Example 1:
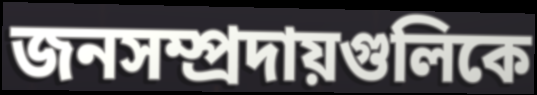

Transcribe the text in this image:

জনসম্প্রদায়গুলিকে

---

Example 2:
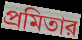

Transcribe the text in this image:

প্রমিতার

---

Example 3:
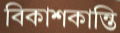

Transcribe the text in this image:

বিকাশকান্তি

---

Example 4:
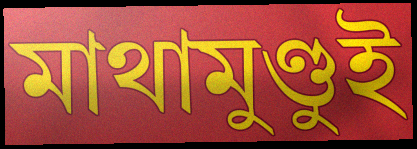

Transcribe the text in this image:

মাথামুণ্ডুই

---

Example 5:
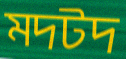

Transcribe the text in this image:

মদটদ